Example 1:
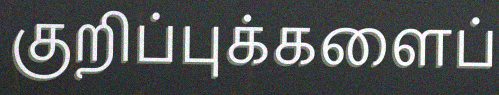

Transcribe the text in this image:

குறிப்புக்களைப்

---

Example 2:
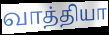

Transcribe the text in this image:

வாத்தியா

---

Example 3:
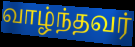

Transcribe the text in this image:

வாழ்ந்தவர்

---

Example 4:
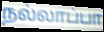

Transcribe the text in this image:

நல்லாப்பா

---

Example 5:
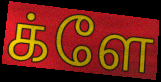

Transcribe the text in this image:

க்ளே